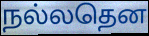
நல்லதென